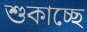
শুকাচ্ছে